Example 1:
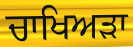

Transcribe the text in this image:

ਚਾਖਿਅੜਾ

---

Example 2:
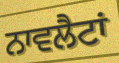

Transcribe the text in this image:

ਨਾਵਲੈਟਾਂ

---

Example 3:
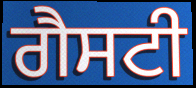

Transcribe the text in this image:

ਗੈਸਟੀ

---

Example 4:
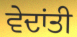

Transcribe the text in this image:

ਵੇਦਾਂਤੀ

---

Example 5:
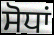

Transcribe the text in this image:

ਸੋਧਾਂ